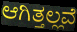
ಆಗಿತ್ತಲ್ಲವೆ